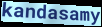
kandasamy